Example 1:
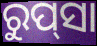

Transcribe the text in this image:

ରୁପ୍‍ସା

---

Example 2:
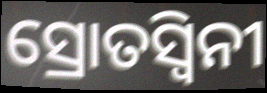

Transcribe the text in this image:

ସ୍ରୋତସ୍ୱିନୀ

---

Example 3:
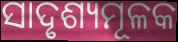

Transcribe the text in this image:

ସାଦୃଶ୍ୟମୂଳକ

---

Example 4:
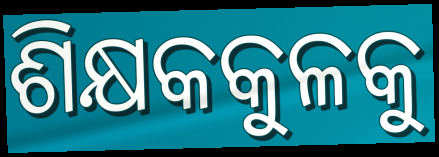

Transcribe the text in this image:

ଶିକ୍ଷକକୁଳକୁ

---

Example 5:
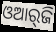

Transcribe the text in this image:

ଓଆର୍‌ଜି